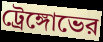
ট্রেঙ্গোভের